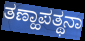
ತಣ್ಹಾಪತ್ಥನಾ